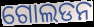
ଗୋଲଡନ